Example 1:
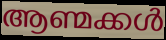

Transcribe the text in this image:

ആണ്മക്കൾ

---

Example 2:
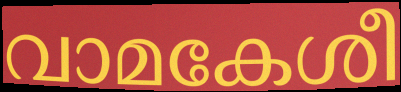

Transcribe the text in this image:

വാമകേശീ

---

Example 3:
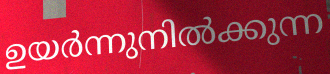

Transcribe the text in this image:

ഉയർന്നുനിൽക്കുന്ന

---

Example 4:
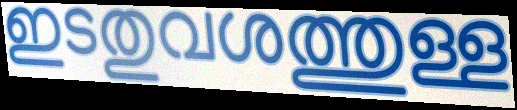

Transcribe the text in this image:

ഇടതുവശത്തുള്ള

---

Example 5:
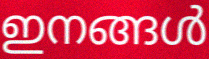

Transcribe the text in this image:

ഇനങ്ങൾ